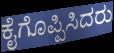
ಕೈಗೊಪ್ಪಿಸಿದರು